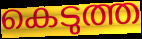
കെടുത്ത